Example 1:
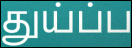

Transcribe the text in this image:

துய்ப்ப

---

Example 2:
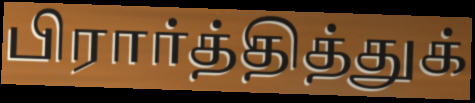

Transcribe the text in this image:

பிரார்த்தித்துக்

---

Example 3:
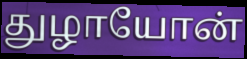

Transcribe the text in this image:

துழாயோன்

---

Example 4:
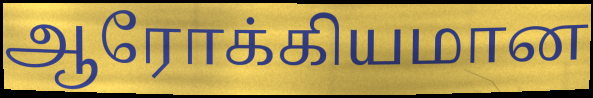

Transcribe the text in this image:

ஆரோக்கியமான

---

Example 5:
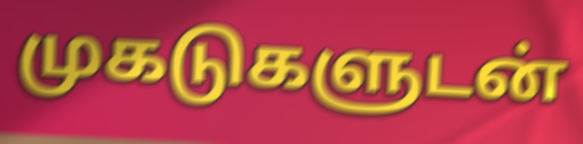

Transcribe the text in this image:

முகடுகளுடன்